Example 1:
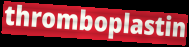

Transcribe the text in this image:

thromboplastin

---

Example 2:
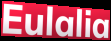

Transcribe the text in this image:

Eulalia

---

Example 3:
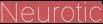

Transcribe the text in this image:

Neurotic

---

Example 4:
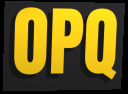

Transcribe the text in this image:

OPQ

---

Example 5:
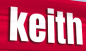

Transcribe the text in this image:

keith